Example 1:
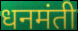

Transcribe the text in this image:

धनमंती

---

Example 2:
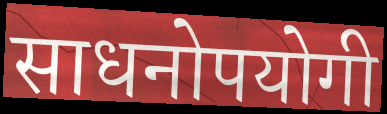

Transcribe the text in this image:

साधनोपयोगी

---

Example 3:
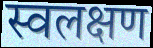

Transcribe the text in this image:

स्वलक्षण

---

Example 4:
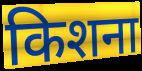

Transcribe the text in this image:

किशना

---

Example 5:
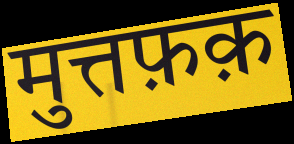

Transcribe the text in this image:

मुत्तफ़क़